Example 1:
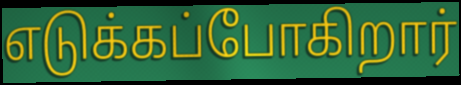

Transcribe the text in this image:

எடுக்கப்போகிறார்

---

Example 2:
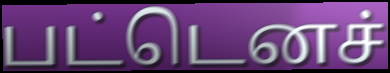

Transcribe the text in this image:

பட்டெனச்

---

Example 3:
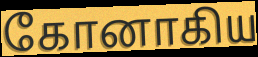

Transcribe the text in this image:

கோனாகிய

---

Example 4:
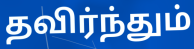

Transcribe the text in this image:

தவிர்ந்தும்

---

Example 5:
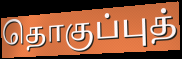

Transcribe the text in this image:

தொகுப்புத்